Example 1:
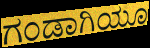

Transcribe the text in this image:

ಗಂಡಾಗಿಯೂ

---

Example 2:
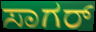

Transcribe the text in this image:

ಸಾಗರ್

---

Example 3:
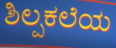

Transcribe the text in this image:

ಶಿಲ್ಪಕಲೆಯ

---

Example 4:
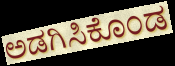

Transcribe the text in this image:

ಅಡಗಿಸಿಕೊಂಡ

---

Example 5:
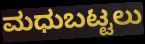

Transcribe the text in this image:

ಮಧುಬಟ್ಟಲು